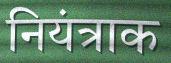
नियंत्राक